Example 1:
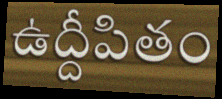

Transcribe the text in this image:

ఉద్దీపితం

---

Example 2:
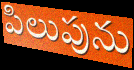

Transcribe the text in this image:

పిలుపును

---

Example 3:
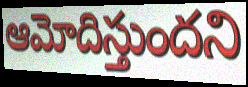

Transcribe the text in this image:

ఆమోదిస్తుందని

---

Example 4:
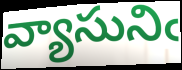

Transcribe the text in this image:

వ్యాసునిఁ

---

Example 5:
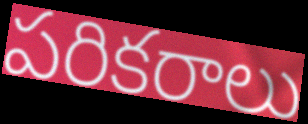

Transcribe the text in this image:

పరికరాలు